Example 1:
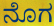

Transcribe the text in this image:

ನೊಗ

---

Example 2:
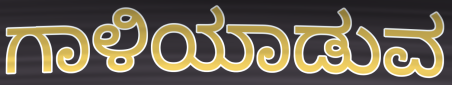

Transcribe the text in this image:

ಗಾಳಿಯಾಡುವ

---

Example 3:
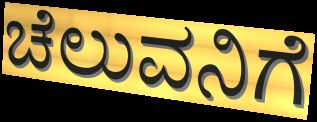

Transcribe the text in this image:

ಚೆಲುವನಿಗೆ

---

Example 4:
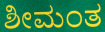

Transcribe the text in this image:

ಶೀಮಂತ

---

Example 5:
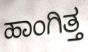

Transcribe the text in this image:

ಹಾಂಗಿತ್ತ